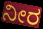
ನೀರ